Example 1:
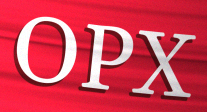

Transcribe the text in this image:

OPX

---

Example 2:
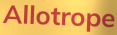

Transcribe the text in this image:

Allotrope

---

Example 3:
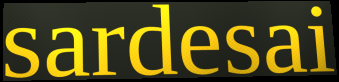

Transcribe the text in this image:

sardesai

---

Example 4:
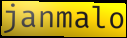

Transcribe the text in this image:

janmalo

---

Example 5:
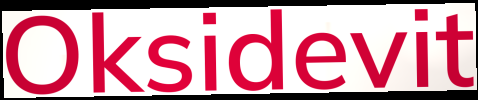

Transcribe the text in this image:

Oksidevit